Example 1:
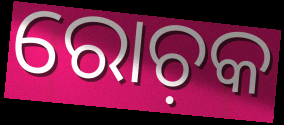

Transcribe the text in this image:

ରୋଚ଼କ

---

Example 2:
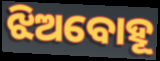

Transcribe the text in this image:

ଝିଅବୋହୂ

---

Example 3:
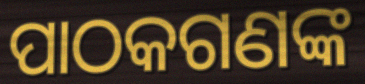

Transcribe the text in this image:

ପାଠକଗଣଙ୍କ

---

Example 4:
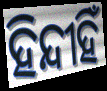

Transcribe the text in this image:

ହିନ୍ଦୀହିଁ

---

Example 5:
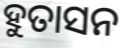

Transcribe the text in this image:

ହୁତାସନ